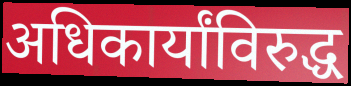
अधिकार्यांविरुद्ध